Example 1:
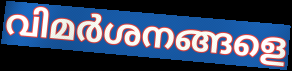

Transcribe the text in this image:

വിമർശനങ്ങളെ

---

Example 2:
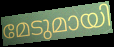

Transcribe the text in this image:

മേടുമായി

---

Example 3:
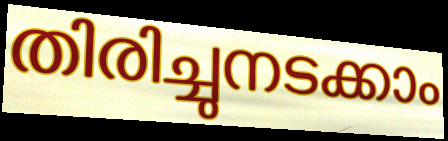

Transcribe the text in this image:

തിരിച്ചുനടക്കാം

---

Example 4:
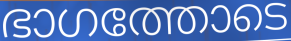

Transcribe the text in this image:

ഭാഗത്തോടെ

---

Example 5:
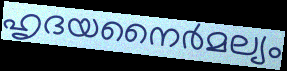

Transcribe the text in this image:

ഹൃദയനൈർമല്യം